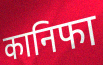
कानिफा